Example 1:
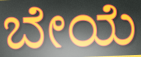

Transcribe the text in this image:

ಬೇಯೆ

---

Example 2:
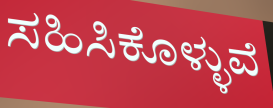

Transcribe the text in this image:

ಸಹಿಸಿಕೊಳ್ಳುವೆ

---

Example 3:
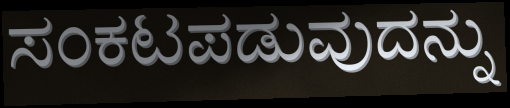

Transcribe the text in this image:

ಸಂಕಟಪಡುವುದನ್ನು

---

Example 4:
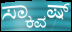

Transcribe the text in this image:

ಸ್ಕ್ವಾಷ್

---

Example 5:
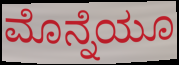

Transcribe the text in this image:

ಮೊನ್ನೆಯೂ